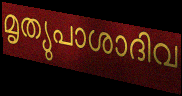
മൃത്യുപാശാദിവ